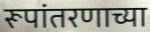
रूपांतरणाच्या